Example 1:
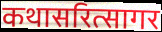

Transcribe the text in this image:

कथासरित्सागर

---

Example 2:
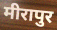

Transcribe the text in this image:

मीरापुर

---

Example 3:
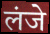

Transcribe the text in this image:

लंजे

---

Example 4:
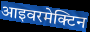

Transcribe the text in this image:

आइवरमेक्टिन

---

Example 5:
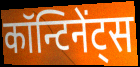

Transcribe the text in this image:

कॉन्टिनेंट्स